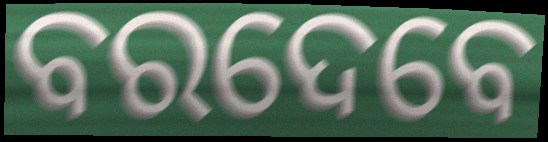
ବରଦେବେ